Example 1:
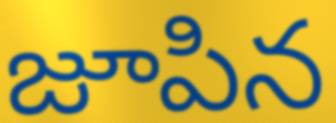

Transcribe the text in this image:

జూపిన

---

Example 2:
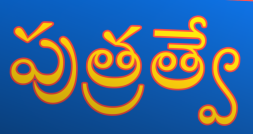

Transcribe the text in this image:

పుత్రత్వే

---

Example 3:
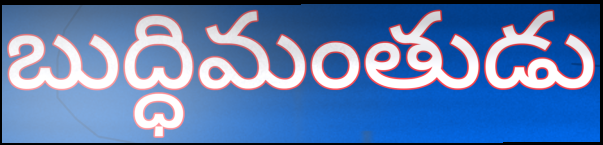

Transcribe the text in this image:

బుద్ధిమంతుడు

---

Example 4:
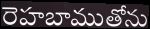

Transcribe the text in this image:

రెహబాముతోను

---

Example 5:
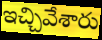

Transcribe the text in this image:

ఇచ్చివేశారు